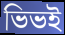
ভিভই